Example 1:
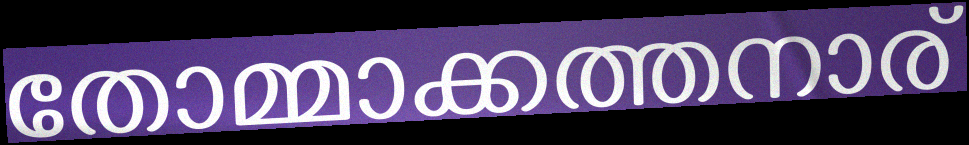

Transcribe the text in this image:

തോമ്മാക്കത്തനാര്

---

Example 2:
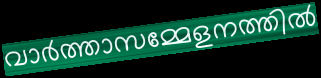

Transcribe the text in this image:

വാർത്താസമ്മേളനത്തിൽ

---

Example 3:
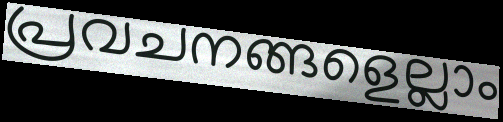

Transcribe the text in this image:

പ്രവചനങ്ങളെല്ലാം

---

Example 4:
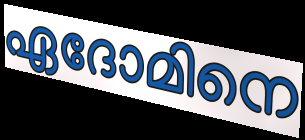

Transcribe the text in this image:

ഏദോമിനെ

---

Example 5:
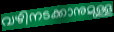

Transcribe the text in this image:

വഴിനടക്കാനുമുള്ള